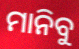
ମାନିବୁ